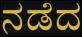
ನಡೆದ